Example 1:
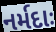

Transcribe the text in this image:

નર્મદાઃ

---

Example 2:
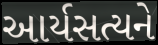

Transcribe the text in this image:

આર્યસત્યને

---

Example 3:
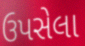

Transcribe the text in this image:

ઉપસેલા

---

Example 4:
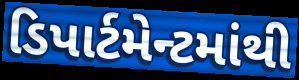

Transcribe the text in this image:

ડિપાર્ટમેન્ટમાંથી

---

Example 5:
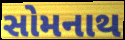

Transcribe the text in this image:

સોમનાથ